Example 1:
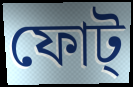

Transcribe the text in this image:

ফোট্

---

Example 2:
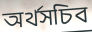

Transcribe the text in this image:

অর্থসচিব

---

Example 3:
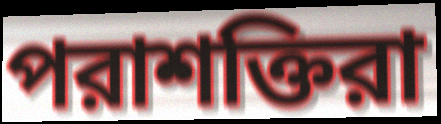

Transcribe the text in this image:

পরাশক্তিরা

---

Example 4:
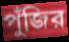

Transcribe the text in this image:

পুঁজির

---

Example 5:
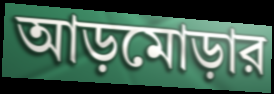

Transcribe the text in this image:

আড়মোড়ার